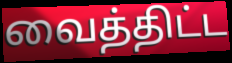
வைத்திட்ட